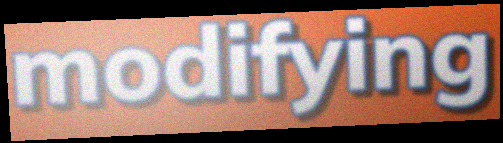
modifying